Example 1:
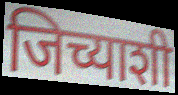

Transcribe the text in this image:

जिच्याशी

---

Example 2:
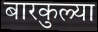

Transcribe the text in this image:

बारकुल्या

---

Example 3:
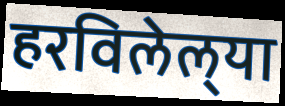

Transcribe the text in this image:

हरविलेल्या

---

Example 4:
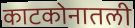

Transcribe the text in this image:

काटकोनातली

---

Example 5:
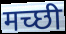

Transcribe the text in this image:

मच्छी